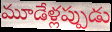
మూడేళ్లప్పుడు